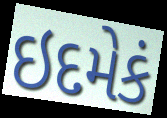
ઇદમેકં